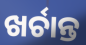
ଖର୍ଚାନ୍ତ